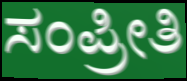
ಸಂಪ್ರೀತಿ